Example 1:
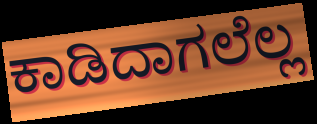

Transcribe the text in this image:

ಕಾಡಿದಾಗಲೆಲ್ಲ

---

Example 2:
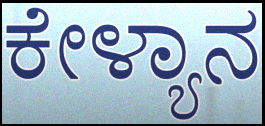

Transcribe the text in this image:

ಕೇಳ್ಯಾನ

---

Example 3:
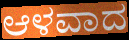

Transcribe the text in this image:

ಆಳವಾದ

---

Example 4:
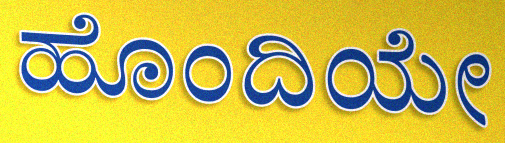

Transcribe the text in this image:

ಹೊಂದಿಯೇ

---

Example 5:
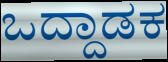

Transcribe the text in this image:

ಒದ್ದಾಡಕ